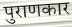
पुराणकार